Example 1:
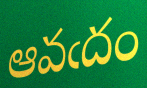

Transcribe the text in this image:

ఆవఁదం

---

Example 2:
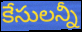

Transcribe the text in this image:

కేసులన్నీ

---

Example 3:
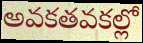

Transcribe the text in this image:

అవకతవకల్లో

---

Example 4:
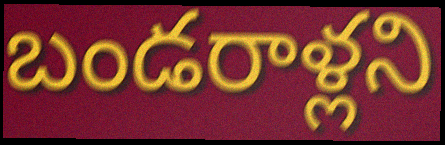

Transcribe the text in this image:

బండరాళ్లని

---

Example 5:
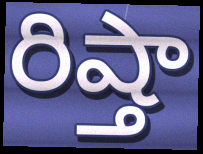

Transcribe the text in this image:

రిష్తా